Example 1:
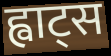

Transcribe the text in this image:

ह्वाट्स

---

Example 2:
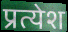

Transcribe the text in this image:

प्रत्येश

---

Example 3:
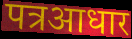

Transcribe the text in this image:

पत्रआधार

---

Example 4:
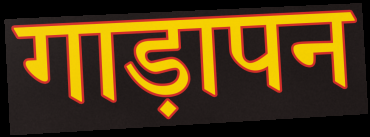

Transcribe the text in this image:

गाड़ापन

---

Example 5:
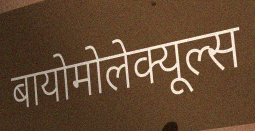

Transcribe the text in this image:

बायोमोलेक्यूल्स